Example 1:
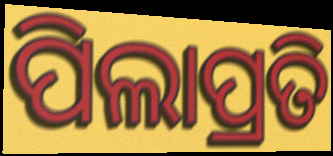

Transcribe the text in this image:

ପିଲାପ୍ରତି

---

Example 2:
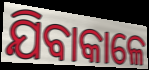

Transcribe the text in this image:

ଯିବାକାଳେ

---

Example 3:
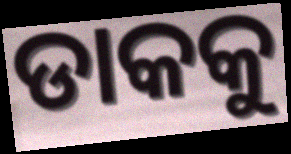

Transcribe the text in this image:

ଡାକକୁ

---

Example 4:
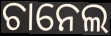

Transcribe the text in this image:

ଚାନେଲ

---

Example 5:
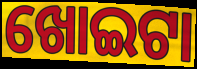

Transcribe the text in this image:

ଖୋଇଟା